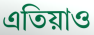
এতিয়াও